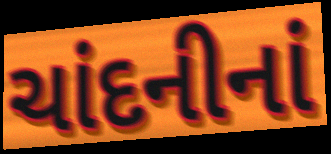
ચાંદનીનાં